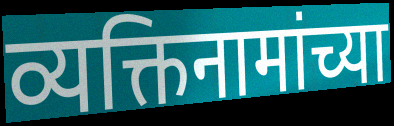
व्यक्तिनामांच्या